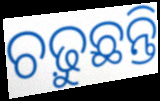
ଚଢ଼ୁଛନ୍ତି